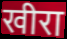
खीरा